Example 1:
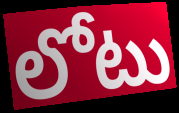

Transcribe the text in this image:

లోటు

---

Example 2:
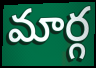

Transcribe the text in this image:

మార్గ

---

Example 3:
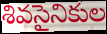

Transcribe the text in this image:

శివసైనికుల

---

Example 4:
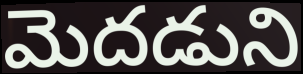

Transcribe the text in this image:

మెదడుని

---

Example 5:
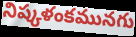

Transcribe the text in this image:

నిష్కళంకమునగు